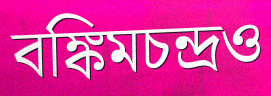
বঙ্কিমচন্দ্রও